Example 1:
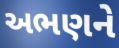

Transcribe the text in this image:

અભણને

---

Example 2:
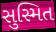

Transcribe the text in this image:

સુસ્મિત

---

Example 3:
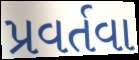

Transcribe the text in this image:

પ્રવર્તવા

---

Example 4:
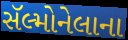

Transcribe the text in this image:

સૅલ્મોનેલાના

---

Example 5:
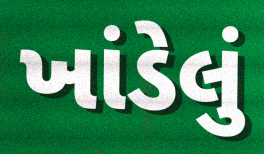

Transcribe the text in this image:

ખાંડેલું